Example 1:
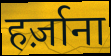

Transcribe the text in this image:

हर्ज़ाना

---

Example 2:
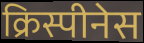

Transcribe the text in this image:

क्रिस्पीनेस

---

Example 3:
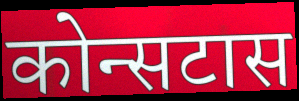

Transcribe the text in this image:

कोन्सटास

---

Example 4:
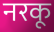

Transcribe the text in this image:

नरकू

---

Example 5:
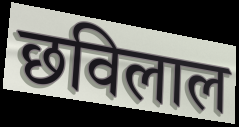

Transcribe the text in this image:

छविलाल